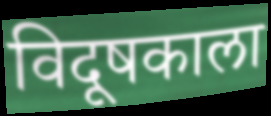
विदूषकाला